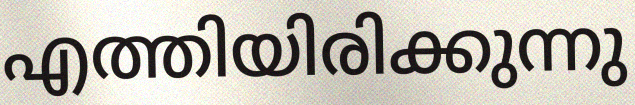
എത്തിയിരിക്കുന്നു